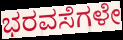
ಭರವಸೆಗಳೇ